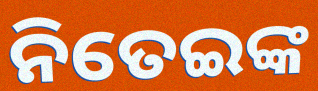
ନିତେଇଙ୍କ